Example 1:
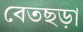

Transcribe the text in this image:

বেতছড়া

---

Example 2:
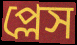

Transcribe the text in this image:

প্লেস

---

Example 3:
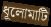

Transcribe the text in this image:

ধূলোমাটি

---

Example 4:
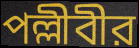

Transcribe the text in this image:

পল্লীবীর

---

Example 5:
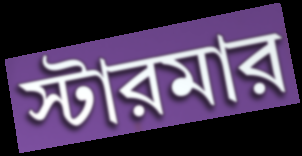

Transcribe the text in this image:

স্টারমার